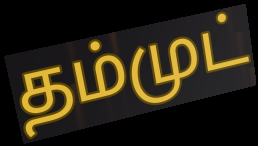
தம்முட்